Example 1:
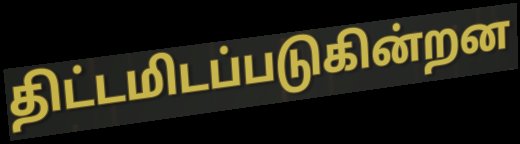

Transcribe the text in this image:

திட்டமிடப்படுகின்றன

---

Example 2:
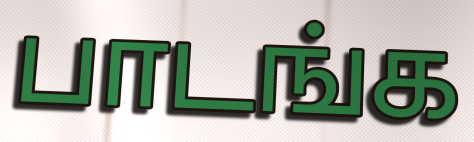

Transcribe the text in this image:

பாடங்க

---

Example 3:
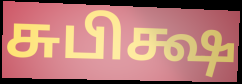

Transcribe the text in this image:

சுபிக்ஷ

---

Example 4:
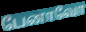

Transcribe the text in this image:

பேனாவோ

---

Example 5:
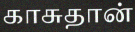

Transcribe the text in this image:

காசுதான்